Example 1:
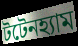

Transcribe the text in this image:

টটেনহ্যাম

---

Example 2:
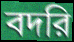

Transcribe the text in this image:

বদরি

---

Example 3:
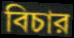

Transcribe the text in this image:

বিচার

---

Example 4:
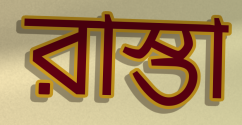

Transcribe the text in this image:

রাস্তা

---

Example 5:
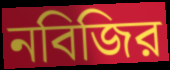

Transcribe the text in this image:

নবিজির